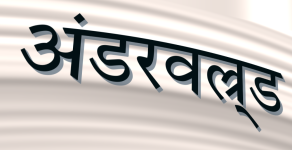
अंडरवल्र्ड